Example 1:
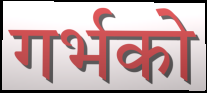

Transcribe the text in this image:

गर्भको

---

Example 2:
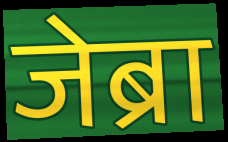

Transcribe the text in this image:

जेब्रा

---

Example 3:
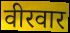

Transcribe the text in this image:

वीरवार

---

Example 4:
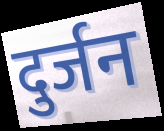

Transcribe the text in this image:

दुर्जन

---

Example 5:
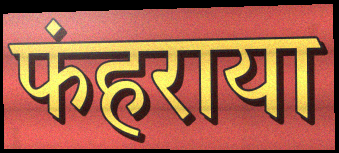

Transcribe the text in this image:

फंहराया